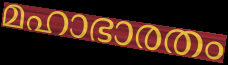
മഹാഭാരതം